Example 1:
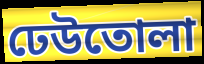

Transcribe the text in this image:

ঢেউতোলা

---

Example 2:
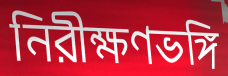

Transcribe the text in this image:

নিরীক্ষণভঙ্গি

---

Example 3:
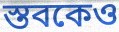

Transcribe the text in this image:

স্তবকেও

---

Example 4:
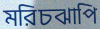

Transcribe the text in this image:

মরিচঝাপি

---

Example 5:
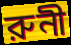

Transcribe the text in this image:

রুনী